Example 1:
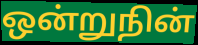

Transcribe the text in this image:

ஒன்றுநின்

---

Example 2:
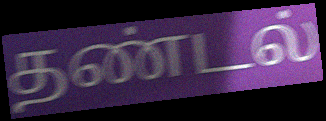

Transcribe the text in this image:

தண்டல்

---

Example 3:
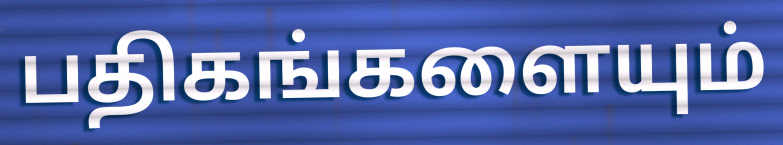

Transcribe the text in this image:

பதிகங்களையும்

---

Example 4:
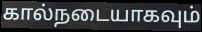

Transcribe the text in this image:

கால்நடையாகவும்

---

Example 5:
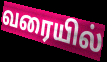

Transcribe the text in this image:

வரையில்